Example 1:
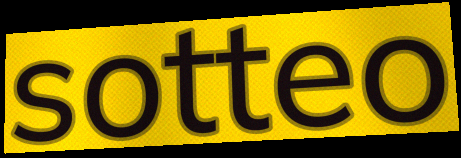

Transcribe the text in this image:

sotteo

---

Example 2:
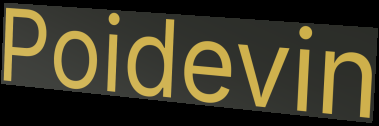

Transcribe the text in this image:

Poidevin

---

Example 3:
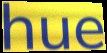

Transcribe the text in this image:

hue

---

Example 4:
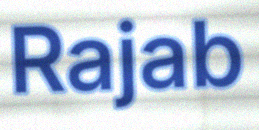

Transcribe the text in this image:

Rajab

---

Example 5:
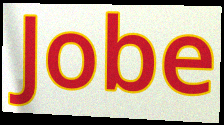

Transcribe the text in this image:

Jobe